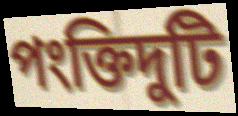
পংক্তিদুটি